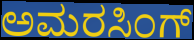
ಅಮರಸಿಂಗ್